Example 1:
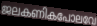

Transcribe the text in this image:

ജലകണികപോലവേ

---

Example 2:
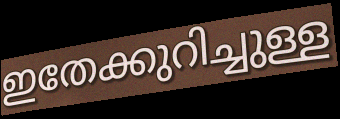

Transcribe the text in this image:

ഇതേക്കുറിച്ചുള്ള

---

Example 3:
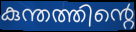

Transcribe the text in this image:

കുന്തത്തിന്റെ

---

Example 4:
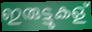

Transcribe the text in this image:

ഇരുട്ടുകള്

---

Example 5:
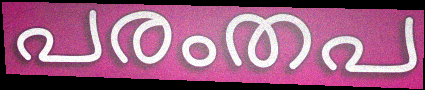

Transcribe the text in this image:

പരംതപ